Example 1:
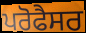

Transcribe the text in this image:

ਪਰੋਫੈਸਰ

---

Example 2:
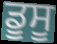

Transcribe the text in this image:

ਡੂਸੂ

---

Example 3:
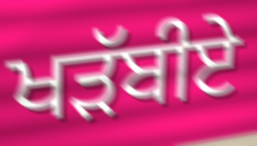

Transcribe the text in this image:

ਖੜੱਬੀਏ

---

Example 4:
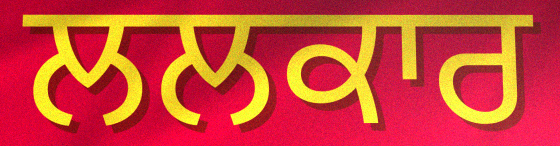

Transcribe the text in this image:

ਲਲਕਾਰ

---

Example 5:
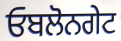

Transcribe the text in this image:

ਓਬਲੋਨਗੇਟ